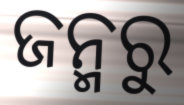
ଜନ୍ମରୁ